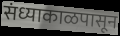
संध्याकाळपासून